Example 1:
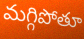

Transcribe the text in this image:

మగ్గిపోతూ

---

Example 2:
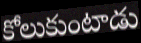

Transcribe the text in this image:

కోలుకుంటాడు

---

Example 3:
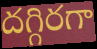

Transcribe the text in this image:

దగ్గిరగా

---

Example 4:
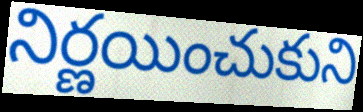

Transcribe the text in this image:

నిర్ణయించుకుని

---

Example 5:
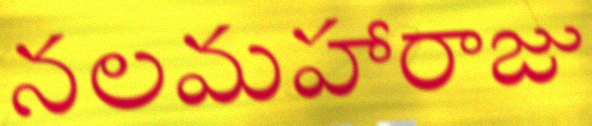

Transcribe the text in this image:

నలమహారాజు